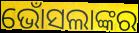
ଭୋଁସଲାଙ୍କର